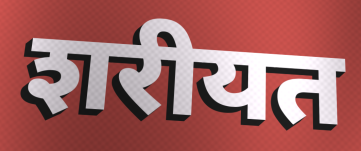
शरीयत